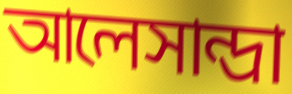
আলেসান্দ্রা